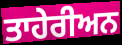
ਤਾਹੇਰੀਅਨ